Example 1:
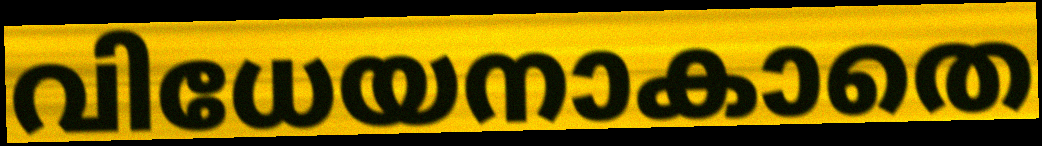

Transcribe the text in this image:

വിധേയനാകാതെ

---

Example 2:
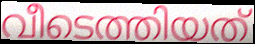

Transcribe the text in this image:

വീടെത്തിയത്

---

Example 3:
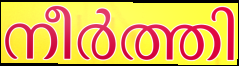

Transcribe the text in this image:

നീർത്തി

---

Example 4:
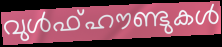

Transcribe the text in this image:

വുൾഫ്ഹൗണ്ടുകൾ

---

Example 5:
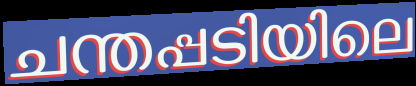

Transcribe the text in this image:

ചന്തപ്പടിയിലെ